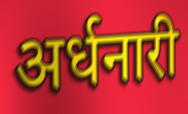
अर्धनारी